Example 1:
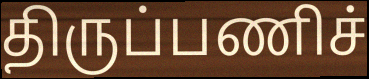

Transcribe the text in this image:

திருப்பணிச்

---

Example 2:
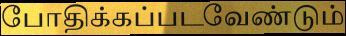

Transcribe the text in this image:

போதிக்கப்படவேண்டும்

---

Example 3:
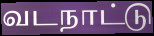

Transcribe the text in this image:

வடநாட்டு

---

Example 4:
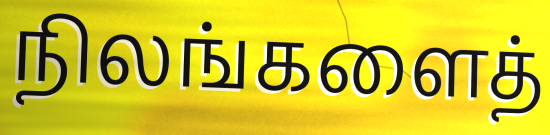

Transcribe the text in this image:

நிலங்களைத்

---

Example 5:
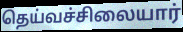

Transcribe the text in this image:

தெய்வச்சிலையார்